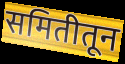
समितीतून